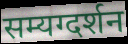
सम्यग्दर्शन